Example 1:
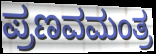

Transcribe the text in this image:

ಪ್ರಣವಮಂತ್ರ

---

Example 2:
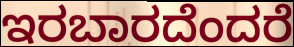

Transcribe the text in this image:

ಇರಬಾರದೆಂದರೆ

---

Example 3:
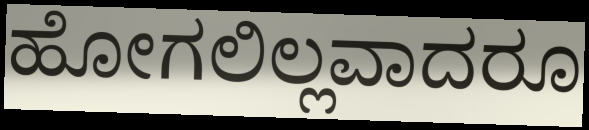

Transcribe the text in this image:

ಹೋಗಲಿಲ್ಲವಾದರೂ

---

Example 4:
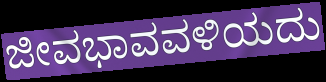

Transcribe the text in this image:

ಜೀವಭಾವವಳಿಯದು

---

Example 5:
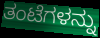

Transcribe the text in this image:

ತಂಟೆಗಳನ್ನು